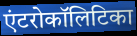
एंटरोकॉलिटिका